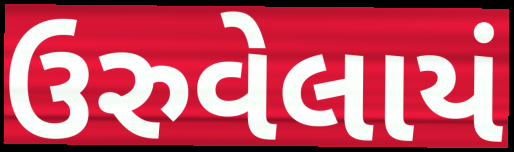
ઉરુવેલાયં